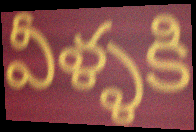
వీళ్ళకి